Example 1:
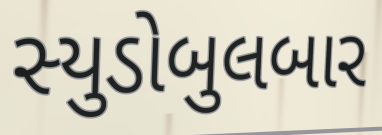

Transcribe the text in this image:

સ્યુડોબુલબાર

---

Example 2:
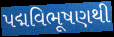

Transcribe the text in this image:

પદ્મવિભૂષણથી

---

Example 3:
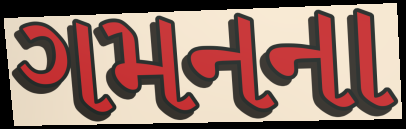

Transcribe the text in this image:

ગમનના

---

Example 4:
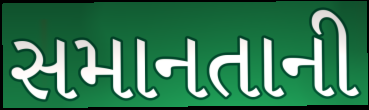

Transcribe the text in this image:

સમાનતાની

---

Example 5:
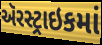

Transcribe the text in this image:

ઍરસ્ટ્રાઇકમાં